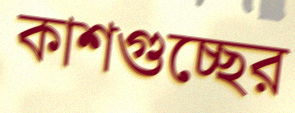
কাশগুচ্ছের